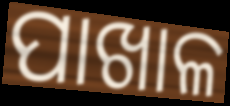
ପାଖାଳ